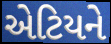
એટિયને